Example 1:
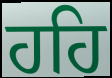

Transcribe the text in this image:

ਹਹਿ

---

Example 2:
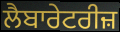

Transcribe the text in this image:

ਲੈਬਾਰੇਟਰੀਜ਼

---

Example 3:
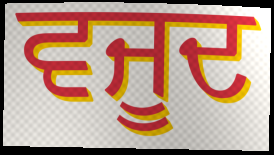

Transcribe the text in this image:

ਵਜੂਦ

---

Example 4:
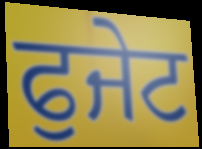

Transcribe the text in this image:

ਫੁਜੇਟ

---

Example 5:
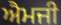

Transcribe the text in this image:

ਐਮਜੀ